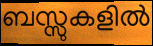
ബസ്സുകളിൽ